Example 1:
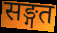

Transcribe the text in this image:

सङ्गत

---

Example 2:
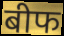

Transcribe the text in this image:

बीफ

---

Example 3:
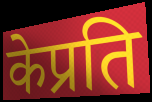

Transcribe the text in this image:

केप्रति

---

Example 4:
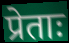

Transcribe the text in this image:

प्रेताः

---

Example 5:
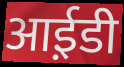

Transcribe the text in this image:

आई़डी